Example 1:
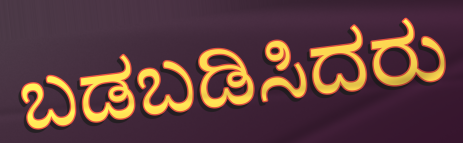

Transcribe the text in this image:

ಬಡಬಡಿಸಿದರು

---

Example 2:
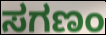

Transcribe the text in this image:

ಸಗಣಂ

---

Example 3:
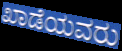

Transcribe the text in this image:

ಖಾಡೆಯವರು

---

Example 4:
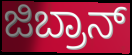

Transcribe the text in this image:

ಜಿಬ್ರಾನ್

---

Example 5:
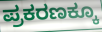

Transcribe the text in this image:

ಪ್ರಕರಣಕ್ಕೂ